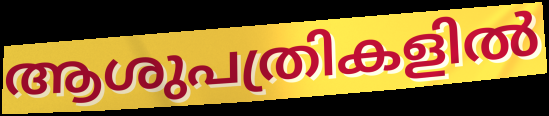
ആശുപത്രികളിൽ